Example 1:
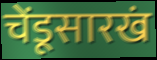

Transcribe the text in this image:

चेंडूसारखं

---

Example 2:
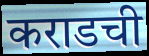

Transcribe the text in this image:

कराडची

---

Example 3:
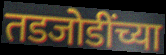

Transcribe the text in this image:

तडजोडींच्या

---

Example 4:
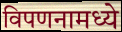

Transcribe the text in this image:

विपणनामध्ये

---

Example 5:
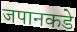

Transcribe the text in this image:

जपानकडे